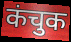
कंचुक